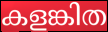
കളങ്കിത